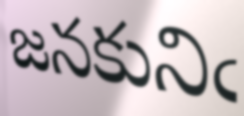
జనకునిఁ